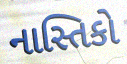
નાસ્તિકો